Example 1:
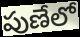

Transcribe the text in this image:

పుణేలో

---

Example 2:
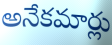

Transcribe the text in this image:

అనేకమార్లు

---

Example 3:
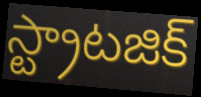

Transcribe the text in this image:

స్ట్రాటజిక్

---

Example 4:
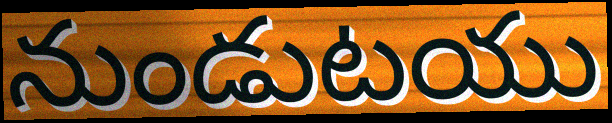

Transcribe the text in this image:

నుండుటయు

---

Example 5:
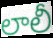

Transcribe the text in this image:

లాలీ